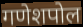
गणेशपोल